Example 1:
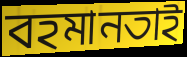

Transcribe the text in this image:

বহমানতাই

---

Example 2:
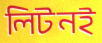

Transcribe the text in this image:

লিটনই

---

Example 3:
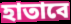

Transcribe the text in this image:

হাতাবে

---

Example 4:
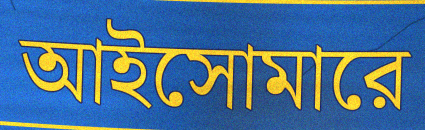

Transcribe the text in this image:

আইসোমারে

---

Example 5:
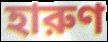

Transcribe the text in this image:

হারুণ